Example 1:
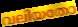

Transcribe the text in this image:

വലിയതോ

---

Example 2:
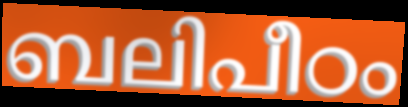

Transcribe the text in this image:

ബലിപീഠം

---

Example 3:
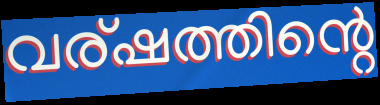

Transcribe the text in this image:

വര്ഷത്തിന്റെ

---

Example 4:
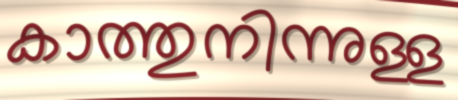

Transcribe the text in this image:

കാത്തുനിന്നുള്ള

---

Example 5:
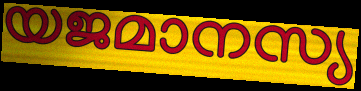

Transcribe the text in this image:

യജമാനസ്യ